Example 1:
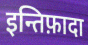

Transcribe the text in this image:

इन्तिफ़ादा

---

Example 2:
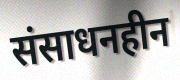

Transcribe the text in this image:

संसाधनहीन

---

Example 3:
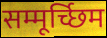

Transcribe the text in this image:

सम्मूर्च्छिम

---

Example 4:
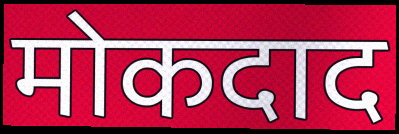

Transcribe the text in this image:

मोकदाद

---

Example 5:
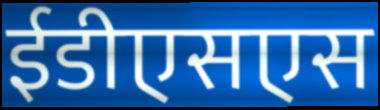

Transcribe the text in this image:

ईडीएसएस